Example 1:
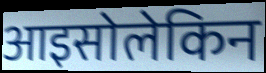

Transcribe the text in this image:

आइसोलेकिन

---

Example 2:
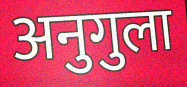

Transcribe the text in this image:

अनुगुला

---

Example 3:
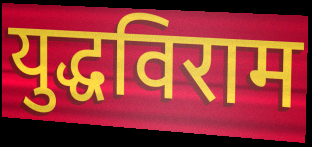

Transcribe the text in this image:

युद्धविराम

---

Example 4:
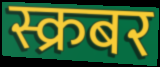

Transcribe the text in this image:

स्‍क्रबर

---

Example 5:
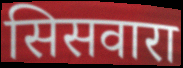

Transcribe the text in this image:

सिसवारा